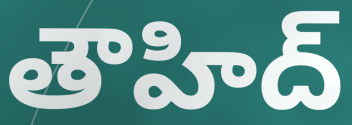
తౌహిద్